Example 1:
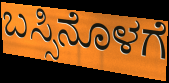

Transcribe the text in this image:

ಬಸ್ಸಿನೊಳಗೆ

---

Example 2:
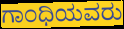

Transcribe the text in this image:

ಗಾಂಧಿಯವರು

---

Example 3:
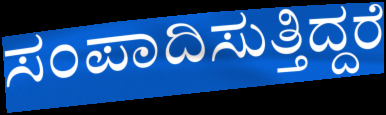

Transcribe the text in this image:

ಸಂಪಾದಿಸುತ್ತಿದ್ದರೆ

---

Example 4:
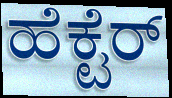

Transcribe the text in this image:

ಹೆಕ್ಟೆರ್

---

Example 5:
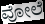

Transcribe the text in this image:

ವೋಲೆ